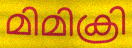
മിമിക്രി